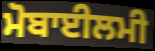
ਮੋਬਾਈਲਮੀ